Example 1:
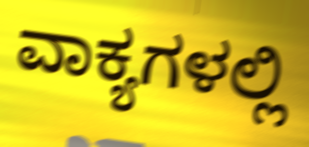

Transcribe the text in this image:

ವಾಕ್ಯಗಳಲ್ಲಿ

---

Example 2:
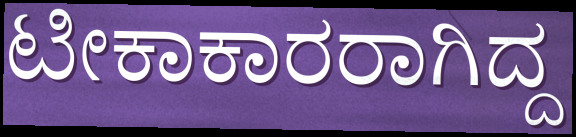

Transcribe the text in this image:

ಟೀಕಾಕಾರರಾಗಿದ್ದ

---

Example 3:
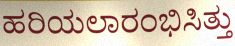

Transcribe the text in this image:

ಹರಿಯಲಾರಂಭಿಸಿತ್ತು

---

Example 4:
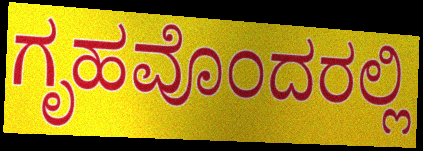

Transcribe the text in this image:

ಗೃಹವೊಂದರಲ್ಲಿ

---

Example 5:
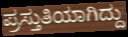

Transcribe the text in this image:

ಪ್ರಸ್ತುತಿಯಾಗಿದ್ದು